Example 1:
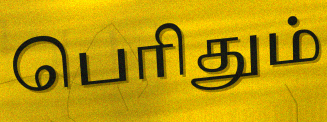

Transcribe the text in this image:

பெரிதும்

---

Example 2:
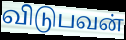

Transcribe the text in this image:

விடுபவன்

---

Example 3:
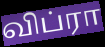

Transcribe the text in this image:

விப்ரா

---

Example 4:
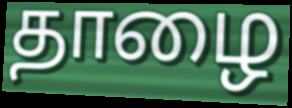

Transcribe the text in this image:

தாழை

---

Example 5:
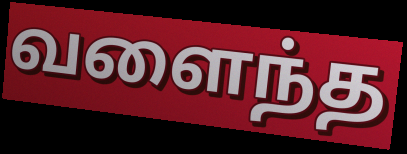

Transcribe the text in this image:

வளைந்த